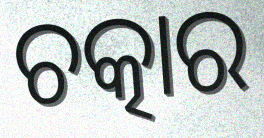
ଚତ୍କାର